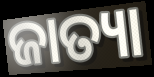
ଜାତ୍ୟା